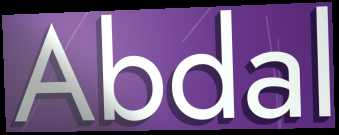
Abdal